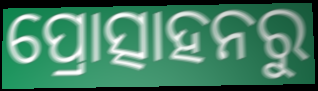
ପ୍ରୋତ୍ସାହନରୁ